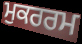
ਮੁਕਰਰਮ